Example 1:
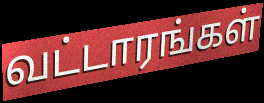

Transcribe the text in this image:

வட்டாரங்கள்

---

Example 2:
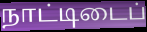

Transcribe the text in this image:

நாட்டிடைப்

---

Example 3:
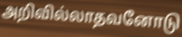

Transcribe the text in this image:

அறிவில்லாதவனோடு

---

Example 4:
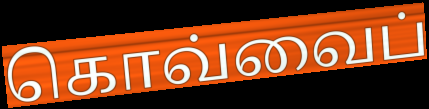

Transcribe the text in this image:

கொவ்வைப்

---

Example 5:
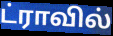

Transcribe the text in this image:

ட்ராவில்